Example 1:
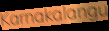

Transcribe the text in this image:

Karnakalangu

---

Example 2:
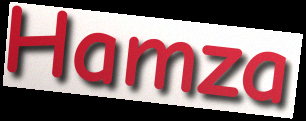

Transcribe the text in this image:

Hamza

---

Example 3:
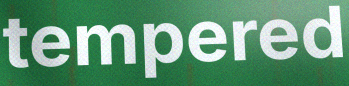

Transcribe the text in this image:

tempered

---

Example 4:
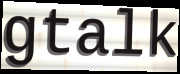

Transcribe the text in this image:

gtalk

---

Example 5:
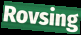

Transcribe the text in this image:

Rovsing